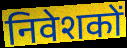
निवेशकों